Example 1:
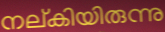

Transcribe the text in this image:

നല്കിയിരുന്നു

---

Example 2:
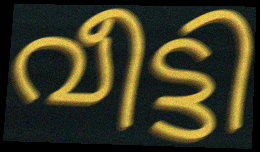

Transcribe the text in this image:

വീട്ടി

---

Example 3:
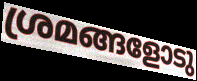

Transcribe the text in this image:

ശ്രമങ്ങളോടു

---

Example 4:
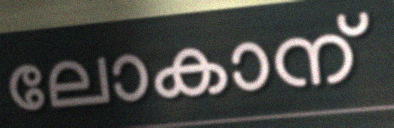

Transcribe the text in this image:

ലോകാന്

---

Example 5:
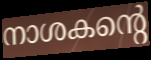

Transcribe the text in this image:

നാശകന്റെ